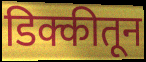
डिक्कीतून